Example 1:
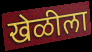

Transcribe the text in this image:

खेळीला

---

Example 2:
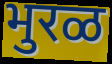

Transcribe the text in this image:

भुरळ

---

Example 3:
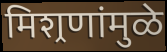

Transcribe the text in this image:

मिश्रणांमुळे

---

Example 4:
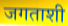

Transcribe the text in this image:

जगताशी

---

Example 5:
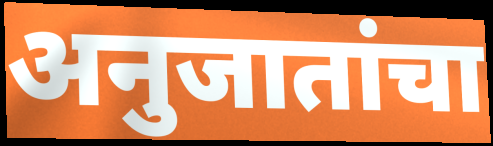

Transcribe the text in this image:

अनुजातांचा